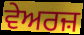
ਵੇਅਰਜ਼